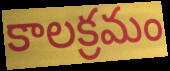
కాలక్రమం